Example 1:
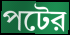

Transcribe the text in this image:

পটের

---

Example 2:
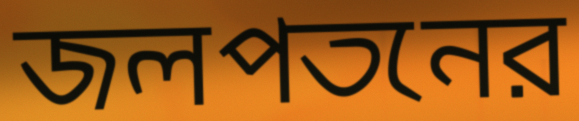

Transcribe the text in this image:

জলপতনের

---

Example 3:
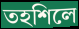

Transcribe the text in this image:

তহশিলে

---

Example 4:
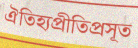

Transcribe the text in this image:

ঐতিহ্যপ্রীতিপ্রসূত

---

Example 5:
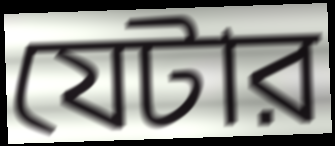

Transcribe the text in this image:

যেটার